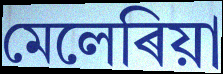
মেলেৰিয়া